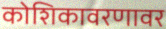
कोशिकावरणावर